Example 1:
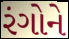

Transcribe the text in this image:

રંગોને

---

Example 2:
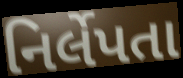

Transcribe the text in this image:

નિર્લેપતા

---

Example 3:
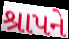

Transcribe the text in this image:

શ્રાપને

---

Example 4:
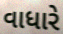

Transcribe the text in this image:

વાધારે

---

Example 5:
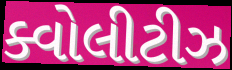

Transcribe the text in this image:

ક્વોલીટીઝ